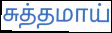
சுத்தமாய்